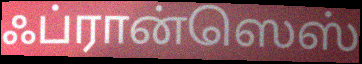
ஃப்ரான்ஸெஸ்